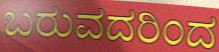
ಬರುವದರಿಂದ